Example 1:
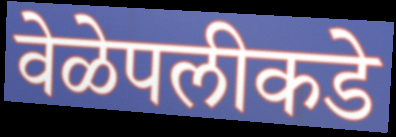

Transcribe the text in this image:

वेळेपलीकडे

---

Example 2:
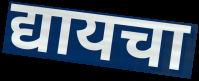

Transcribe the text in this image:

द्यायचा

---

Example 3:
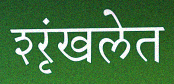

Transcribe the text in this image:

श्रृंखलेत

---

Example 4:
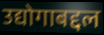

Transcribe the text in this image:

उद्योगाबद्दल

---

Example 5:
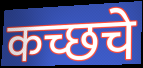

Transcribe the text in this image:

कच्छचे